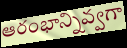
ఆరంభాన్నివ్వగా